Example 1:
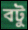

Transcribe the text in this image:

বটু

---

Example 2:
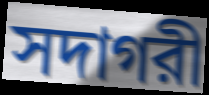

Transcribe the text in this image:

সদাগরী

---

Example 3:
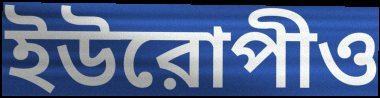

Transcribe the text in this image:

ইউরোপীও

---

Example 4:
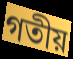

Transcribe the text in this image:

গতীয়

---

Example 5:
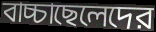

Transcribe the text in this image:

বাচ্চাছেলেদের